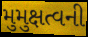
મુમુક્ષત્વની